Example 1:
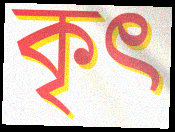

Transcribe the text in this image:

কৃৎ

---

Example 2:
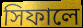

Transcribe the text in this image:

সিফালে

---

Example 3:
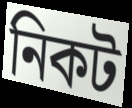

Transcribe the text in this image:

নিকট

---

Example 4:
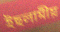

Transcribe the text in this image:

ইছলামীয়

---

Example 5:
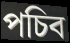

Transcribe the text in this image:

পচিব